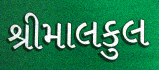
શ્રીમાલકુલ